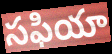
సఫియా